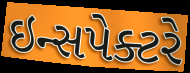
ઇન્સપેક્ટરે